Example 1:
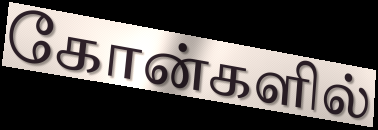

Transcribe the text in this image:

கோன்களில்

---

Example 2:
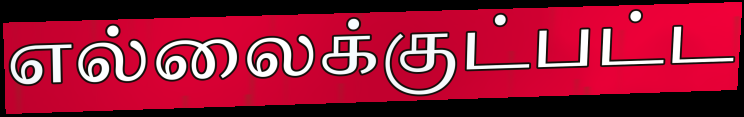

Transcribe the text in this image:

எல்லைக்குட்பட்ட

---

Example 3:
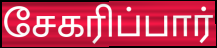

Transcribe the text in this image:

சேகரிப்பார்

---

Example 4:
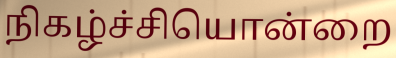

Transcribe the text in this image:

நிகழ்ச்சியொன்றை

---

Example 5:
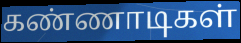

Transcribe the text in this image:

கண்ணாடிகள்